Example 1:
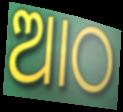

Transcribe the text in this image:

ଆଠ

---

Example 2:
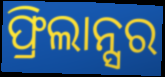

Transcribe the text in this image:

ଫ୍ରିଲାନ୍ସର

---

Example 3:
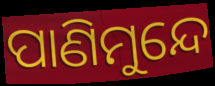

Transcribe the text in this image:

ପାଣିମୁନ୍ଦେ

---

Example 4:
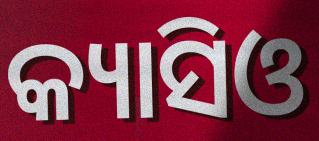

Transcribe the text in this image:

କ୍ୟାସିଓ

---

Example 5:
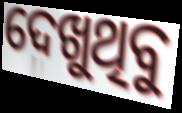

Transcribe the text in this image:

ଦେଖୁଥିବୁ